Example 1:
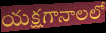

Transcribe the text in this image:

యక్షగానాలలో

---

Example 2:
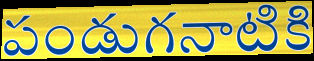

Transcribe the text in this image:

పండుగనాటికి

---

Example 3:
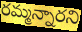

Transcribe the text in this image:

రమ్మన్నారని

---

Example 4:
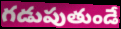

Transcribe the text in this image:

గడుపుతుండే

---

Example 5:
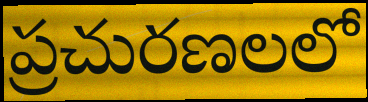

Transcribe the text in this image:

ప్రచురణలలో